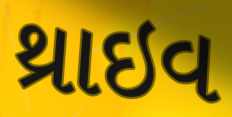
થ્રાઇવ